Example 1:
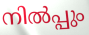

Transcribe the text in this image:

നിൽപ്പും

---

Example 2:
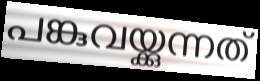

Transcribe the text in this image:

പങ്കുവയ്ക്കുന്നത്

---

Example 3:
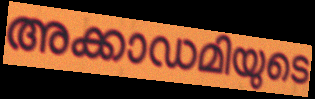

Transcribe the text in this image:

അക്കാഡമിയുടെ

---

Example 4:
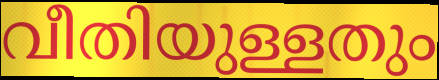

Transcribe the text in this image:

വീതിയുള്ളതും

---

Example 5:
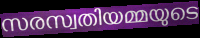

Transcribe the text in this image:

സരസ്വതിയമ്മയുടെ